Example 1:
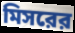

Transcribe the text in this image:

মিসরের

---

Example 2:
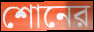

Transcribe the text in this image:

শোনের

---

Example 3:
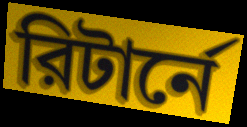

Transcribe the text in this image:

রিটার্নে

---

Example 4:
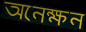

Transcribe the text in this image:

অনেক্ষন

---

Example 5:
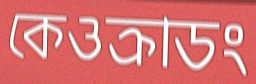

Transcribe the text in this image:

কেওক্রাডং